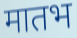
मातभ